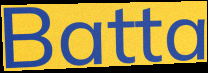
Batta